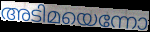
അടിമയെന്നോ